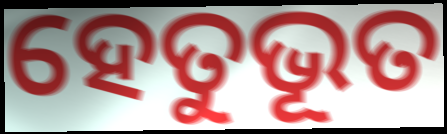
ହେତୁଭୂତ